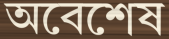
অবেশেষ